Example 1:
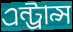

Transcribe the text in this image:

এন্ট্রান্স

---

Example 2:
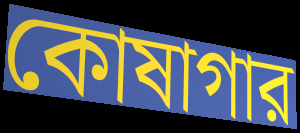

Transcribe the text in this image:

কোষাগার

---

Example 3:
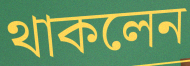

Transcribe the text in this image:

থাকলেন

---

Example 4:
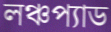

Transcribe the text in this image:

লঞ্চপ্যাড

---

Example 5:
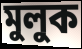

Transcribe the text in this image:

মুলুক